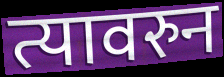
त्यावरुन